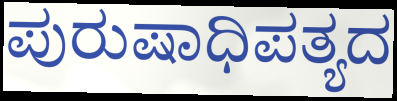
ಪುರುಷಾಧಿಪತ್ಯದ